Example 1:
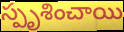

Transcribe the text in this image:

స్పృశించాయి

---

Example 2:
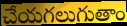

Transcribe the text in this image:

చేయగలుగుతాం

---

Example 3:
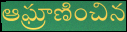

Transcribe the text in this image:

ఆఘ్రాణించిన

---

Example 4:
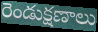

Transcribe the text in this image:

రెండుక్షణాలు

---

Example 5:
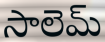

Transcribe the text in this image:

సాలెమ్